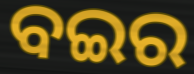
ବଇର